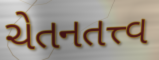
ચેતનતત્ત્વ